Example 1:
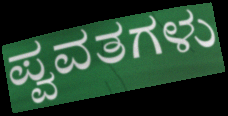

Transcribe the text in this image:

ಪ್ವವತಗಳು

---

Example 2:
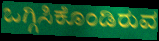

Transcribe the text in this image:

ಒಗ್ಗಿಸಿಕೊಂಡಿರುವ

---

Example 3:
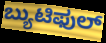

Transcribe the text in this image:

ಬ್ಯುಟಿಫುಲ್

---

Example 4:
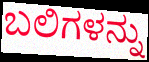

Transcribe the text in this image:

ಬಲಿಗಳನ್ನು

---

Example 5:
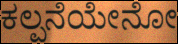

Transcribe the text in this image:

ಕಲ್ಪನೆಯೇನೋ